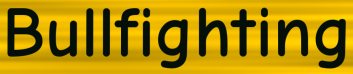
Bullfighting